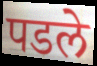
पडले